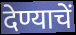
देण्याचें